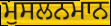
ਮੁਸਲਨਮਾਨ